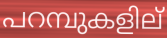
പറമ്പുകളില്